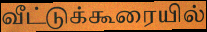
வீட்டுக்கூரையில்